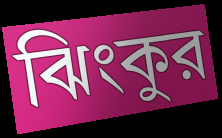
ঝিংকুর